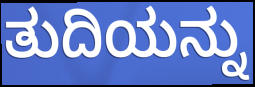
ತುದಿಯನ್ನು